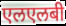
एलएलबी